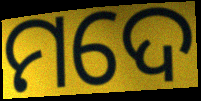
ମଦେ